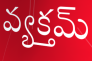
వ్యక్తమ్